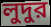
লুদুর